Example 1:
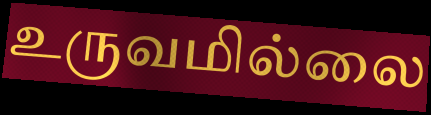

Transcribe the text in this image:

உருவமில்லை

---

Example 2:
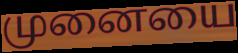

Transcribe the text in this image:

முனையை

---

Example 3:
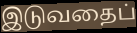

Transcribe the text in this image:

இடுவதைப்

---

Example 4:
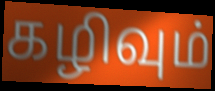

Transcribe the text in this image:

கழிவும்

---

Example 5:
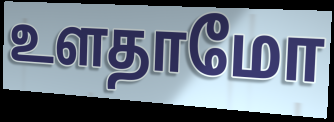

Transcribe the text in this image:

உளதாமோ